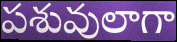
పశువులాగా